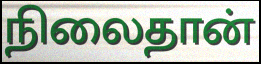
நிலைதான்